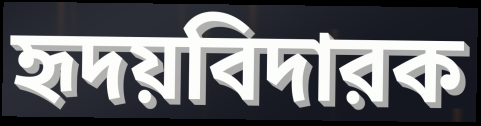
হৃদয়বিদারক